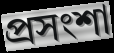
প্ৰসংশা